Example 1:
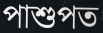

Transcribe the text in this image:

পাশুপত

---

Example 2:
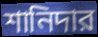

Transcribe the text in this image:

শানিদার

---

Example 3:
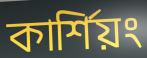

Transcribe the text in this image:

কার্শিয়ং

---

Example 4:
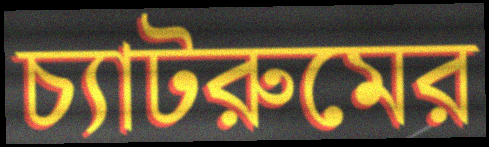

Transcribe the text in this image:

চ্যাটরুমের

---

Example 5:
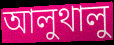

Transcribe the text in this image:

আলুথালু